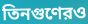
তিনগুণেরও